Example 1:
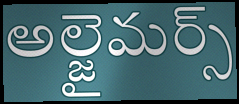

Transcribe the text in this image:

అల్జైమర్స్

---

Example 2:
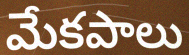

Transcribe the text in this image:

మేకపాలు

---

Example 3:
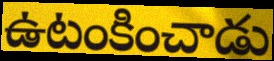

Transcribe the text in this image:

ఉటంకించాడు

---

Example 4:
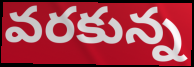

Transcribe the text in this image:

వరకున్న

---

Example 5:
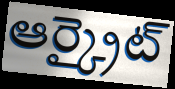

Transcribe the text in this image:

ఆర్క్రైట్